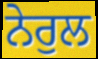
ਨੇਰੁਲ